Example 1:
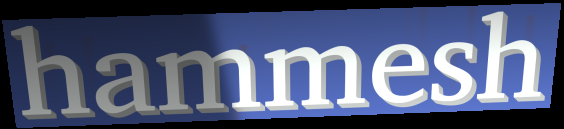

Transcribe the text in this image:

hammesh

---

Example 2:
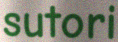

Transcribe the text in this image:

sutori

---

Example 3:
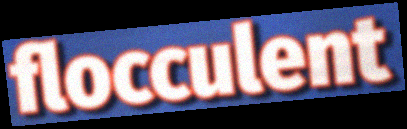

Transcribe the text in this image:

flocculent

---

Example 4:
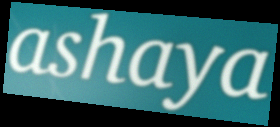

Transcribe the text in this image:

ashaya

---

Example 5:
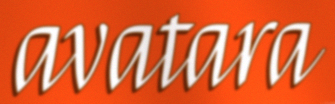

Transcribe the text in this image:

avatara